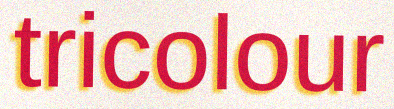
tricolour